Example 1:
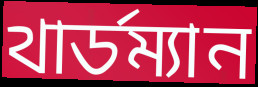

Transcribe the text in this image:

থার্ডম্যান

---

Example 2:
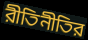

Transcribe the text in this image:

রীতিনীতির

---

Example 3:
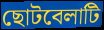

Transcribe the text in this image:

ছোটবেলাটি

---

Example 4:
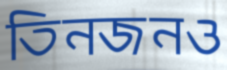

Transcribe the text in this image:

তিনজনও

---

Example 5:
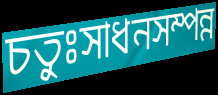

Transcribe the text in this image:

চতুঃসাধনসম্পন্ন